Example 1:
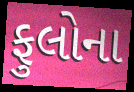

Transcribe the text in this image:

ફુલોના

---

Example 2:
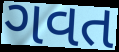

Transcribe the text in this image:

ગવત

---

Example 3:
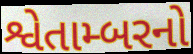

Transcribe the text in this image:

શ્વેતામ્બરનો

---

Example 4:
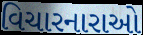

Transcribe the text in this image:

વિચારનારાઓ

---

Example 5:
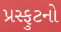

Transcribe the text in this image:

પ્રસ્ફુટનો